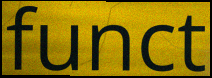
funct